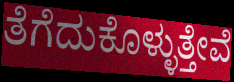
ತೆಗೆದುಕೊಳ್ಳುತ್ತೇವೆ